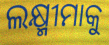
ଲକ୍ଷ୍ମୀମାକୁ